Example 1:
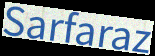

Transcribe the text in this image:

Sarfaraz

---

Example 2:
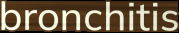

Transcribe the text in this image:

bronchitis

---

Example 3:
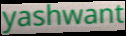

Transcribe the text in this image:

yashwant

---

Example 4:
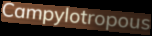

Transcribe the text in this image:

Campylotropous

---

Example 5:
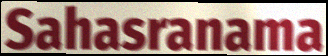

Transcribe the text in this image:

Sahasranama